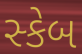
સ્કેબ